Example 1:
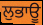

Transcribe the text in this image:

ਲੁਭਾਊ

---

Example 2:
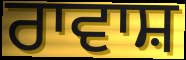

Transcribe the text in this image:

ਰਾਵਾਸ਼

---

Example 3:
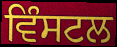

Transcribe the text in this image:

ਵਿੰਸਟਲ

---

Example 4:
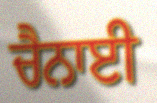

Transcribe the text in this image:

ਚੈਨਾਈ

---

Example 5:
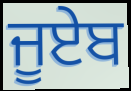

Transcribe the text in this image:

ਜੂਏਬ